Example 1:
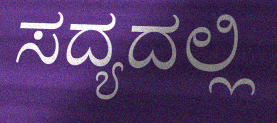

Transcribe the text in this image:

ಸದ್ಯದಲ್ಲಿ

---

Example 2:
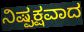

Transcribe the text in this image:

ನಿಷ್ಪಕ್ಷವಾದ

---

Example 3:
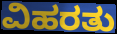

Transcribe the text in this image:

ವಿಹರತು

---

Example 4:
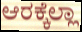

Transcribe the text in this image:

ಆರಕ್ಕೆಲ್ಲಾ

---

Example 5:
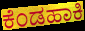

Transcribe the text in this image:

ಕೆಂಡಹಾಕಿ